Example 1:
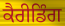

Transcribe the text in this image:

ਕੈਰੀਡਿੰਗ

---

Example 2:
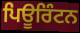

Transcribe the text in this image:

ਪਿਊਰਿੰਟਨ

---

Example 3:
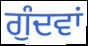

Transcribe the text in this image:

ਗੁੰਦਵਾਂ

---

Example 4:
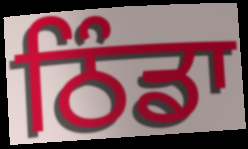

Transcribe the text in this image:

ਠਿੰਡਾ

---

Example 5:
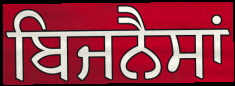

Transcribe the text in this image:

ਬਿਜਨੈਸਾਂ